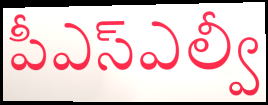
పీఎస్ఎల్వీ